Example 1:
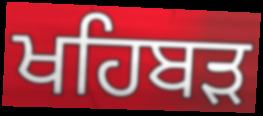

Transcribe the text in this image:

ਖਹਿਬੜ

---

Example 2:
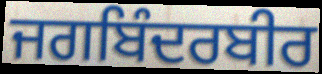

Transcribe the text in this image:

ਜਗਬਿੰਦਰਬੀਰ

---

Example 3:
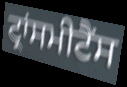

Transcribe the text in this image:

ਟ੍ਰਾਂਸਮੀਟੈਂਸ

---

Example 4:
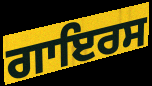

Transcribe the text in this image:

ਗਾਇਰਸ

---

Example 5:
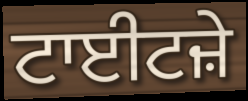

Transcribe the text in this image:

ਟਾਈਟਜ਼ੇ